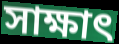
সাক্ষাৎ